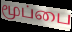
மூப்பை